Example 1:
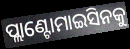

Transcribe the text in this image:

ପ୍ଲାଣ୍ଟୋମାଇସିନକୁ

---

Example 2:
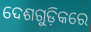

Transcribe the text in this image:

ଦେଶଗୁଡ଼ିକରେ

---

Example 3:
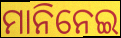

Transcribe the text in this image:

ମାନିନେଇ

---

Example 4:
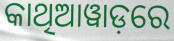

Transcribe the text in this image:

କାଥିଆୱାଡ଼ରେ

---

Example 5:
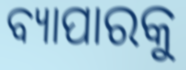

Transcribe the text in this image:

ବ୍ୟାପାରକୁ